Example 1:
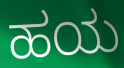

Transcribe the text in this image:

ಹಯ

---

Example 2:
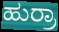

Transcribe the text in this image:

ಹುರ್ರಾ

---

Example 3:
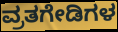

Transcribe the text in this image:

ವ್ರತಗೇಡಿಗಳ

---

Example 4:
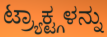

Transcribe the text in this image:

ಟ್ರ್ಯಾಕ್ಟ್ಗಳನ್ನು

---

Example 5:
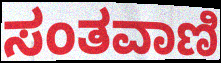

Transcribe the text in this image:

ಸಂತವಾಣಿ